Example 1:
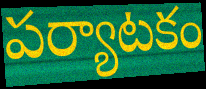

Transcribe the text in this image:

పర్యాటకం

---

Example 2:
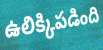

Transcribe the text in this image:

ఉలిక్కిపడింది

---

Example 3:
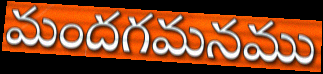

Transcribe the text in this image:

మందగమనము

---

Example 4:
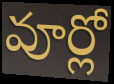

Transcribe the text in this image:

వూర్లో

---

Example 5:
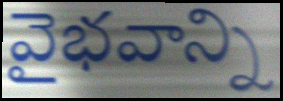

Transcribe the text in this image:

వైభవాన్ని